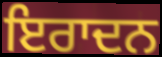
ਇਰਾਦਨ